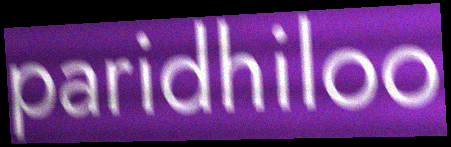
paridhiloo